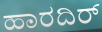
ಹಾರದಿರ್